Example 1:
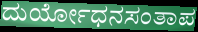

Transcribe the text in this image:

ದುರ್ಯೋಧನಸಂತಾಪ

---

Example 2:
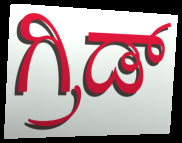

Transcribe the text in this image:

ಗ್ರಿಡ್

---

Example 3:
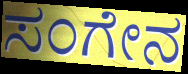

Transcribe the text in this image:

ಸಂಗೇನ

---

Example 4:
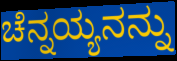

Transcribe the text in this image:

ಚೆನ್ನಯ್ಯನನ್ನು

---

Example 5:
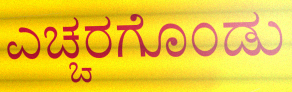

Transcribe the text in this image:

ಎಚ್ಚರಗೊಂಡು